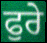
ਫੁਰੇ